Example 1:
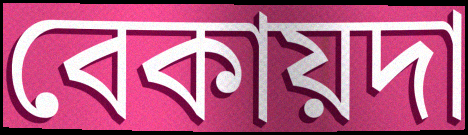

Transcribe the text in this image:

বেকায়দা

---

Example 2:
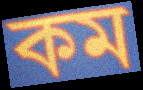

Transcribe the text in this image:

কম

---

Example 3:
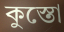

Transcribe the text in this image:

কুস্তো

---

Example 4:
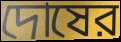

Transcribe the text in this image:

দোষের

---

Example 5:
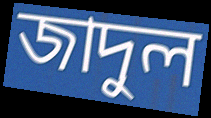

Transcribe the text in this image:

জাদুল